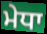
ਮੇਧਾ